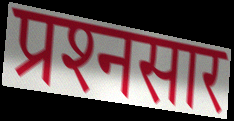
प्रश्‍नसार